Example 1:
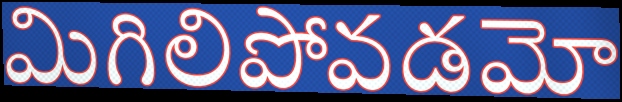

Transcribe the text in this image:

మిగిలిపోవడమో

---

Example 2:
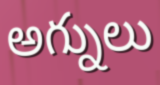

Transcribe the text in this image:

అగ్నులు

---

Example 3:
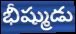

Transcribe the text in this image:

భీష్ముడు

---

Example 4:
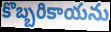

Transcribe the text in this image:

కొబ్బరికాయను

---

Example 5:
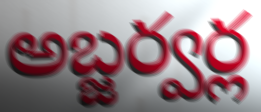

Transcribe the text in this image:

అబ్జర్వర్ల